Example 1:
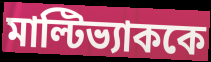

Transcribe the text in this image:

মাল্টিভ্যাককে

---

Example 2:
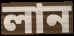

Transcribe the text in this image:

লান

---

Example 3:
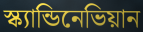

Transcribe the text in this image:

স্ক্যান্ডিনেভিয়ান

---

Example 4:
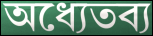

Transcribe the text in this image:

অধ্যেতব্য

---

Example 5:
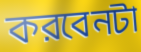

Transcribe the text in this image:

করবেনটা